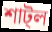
শাট্ল